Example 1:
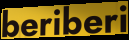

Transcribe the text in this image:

beriberi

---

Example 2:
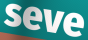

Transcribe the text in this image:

seve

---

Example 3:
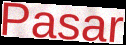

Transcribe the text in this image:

Pasar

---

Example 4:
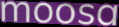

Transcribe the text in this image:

moosa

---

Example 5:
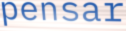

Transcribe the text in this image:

pensar